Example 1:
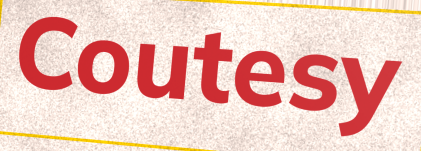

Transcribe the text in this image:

Coutesy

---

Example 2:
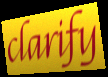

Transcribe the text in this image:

clarify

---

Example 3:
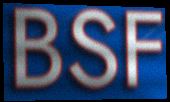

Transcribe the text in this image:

BSF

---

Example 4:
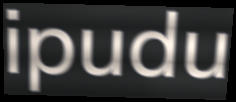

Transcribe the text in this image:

ipudu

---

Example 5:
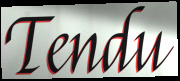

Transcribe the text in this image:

Tendu